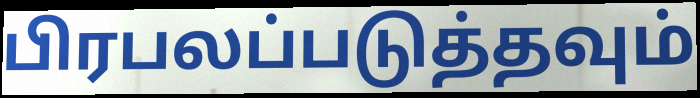
பிரபலப்படுத்தவும்